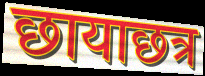
छायाछत्र